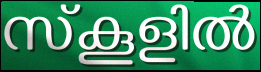
സ്‌കൂളിൽ